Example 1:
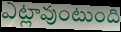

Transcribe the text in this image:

ఎట్లావుంటుంది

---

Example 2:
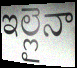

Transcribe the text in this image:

ఇల్లైనా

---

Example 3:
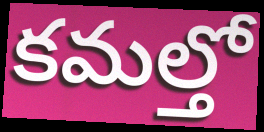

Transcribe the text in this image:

కమల్తో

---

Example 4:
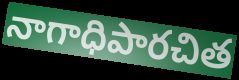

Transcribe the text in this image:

నాగాధిపారచిత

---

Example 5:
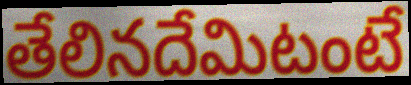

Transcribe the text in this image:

తేలినదేమిటంటే